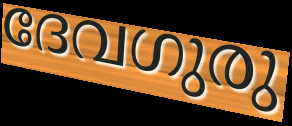
ദേവഗുരു